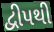
દ્વીપથી